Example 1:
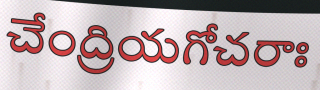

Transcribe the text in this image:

చేంద్రియగోచరాః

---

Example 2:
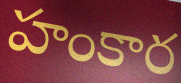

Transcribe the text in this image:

హంకార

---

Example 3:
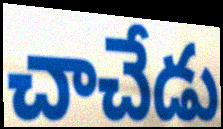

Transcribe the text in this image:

చాచేడు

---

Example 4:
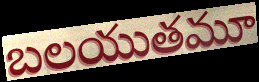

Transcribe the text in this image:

బలయుతమూ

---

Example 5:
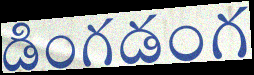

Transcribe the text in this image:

డింగడంగ